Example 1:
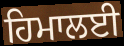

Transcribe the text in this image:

ਹਿਮਾਲਈ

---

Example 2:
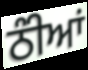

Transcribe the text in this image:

ਠੰੀਆਂ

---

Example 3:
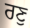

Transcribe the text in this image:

ਰਣੁ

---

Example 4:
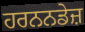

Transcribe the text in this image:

ਹਰਨਨਡੇਜ਼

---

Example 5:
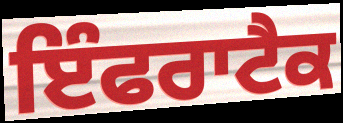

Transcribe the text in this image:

ਇੰਫਰਾਟੈਕ